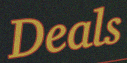
Deals